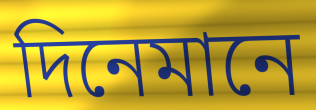
দিনেমানে